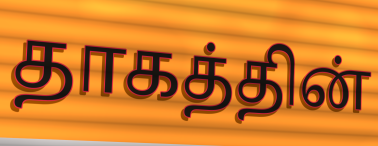
தாகத்தின்